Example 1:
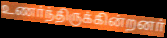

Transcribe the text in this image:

உணர்ந்திருக்கின்றனர்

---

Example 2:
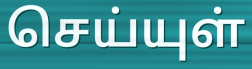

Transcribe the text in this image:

செய்யுள்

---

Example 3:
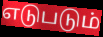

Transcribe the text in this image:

எடுபடும்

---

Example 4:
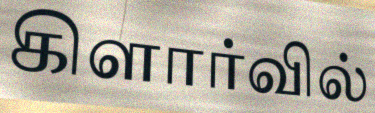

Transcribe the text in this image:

கிளார்வில்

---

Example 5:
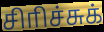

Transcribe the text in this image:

சிரிச்சுக்